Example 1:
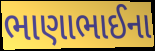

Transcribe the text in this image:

ભાણાભાઈના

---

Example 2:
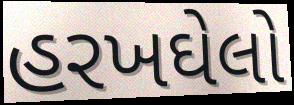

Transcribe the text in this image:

હરખઘેલો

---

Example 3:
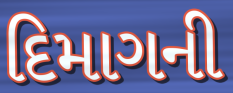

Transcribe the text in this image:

દિમાગની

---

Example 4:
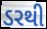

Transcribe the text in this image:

ડરથી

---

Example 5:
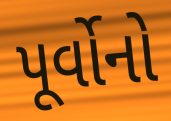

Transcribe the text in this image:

પૂર્વોનો